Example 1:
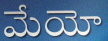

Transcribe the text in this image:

మేయో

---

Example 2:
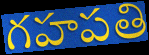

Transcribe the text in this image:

గహపతి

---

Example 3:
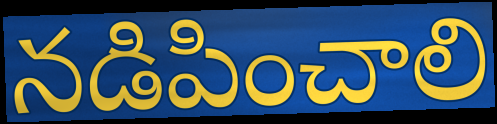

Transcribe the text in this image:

నడిపించాలి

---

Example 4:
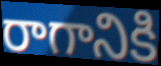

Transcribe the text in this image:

రాగానికి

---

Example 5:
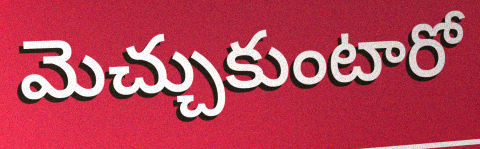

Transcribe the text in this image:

మెచ్చుకుంటారో